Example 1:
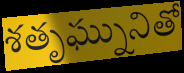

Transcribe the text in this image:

శతృఘ్నునితో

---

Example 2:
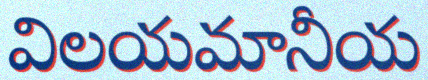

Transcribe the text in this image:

విలయమానీయ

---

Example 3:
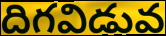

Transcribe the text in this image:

దిగవిడువ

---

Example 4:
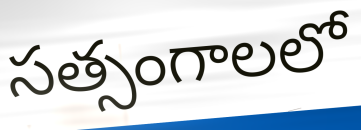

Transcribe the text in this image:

సత్సంగాలలో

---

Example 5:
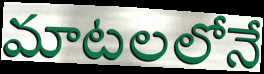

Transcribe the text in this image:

మాటలలోనే